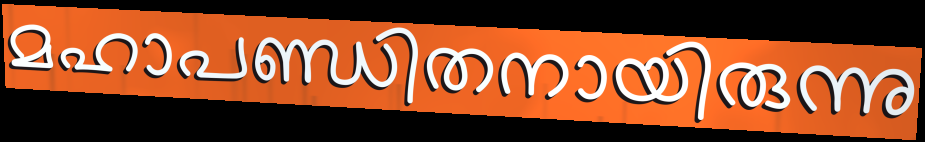
മഹാപണ്ഡിതനായിരുന്നു